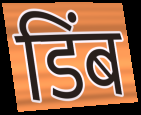
डिंब